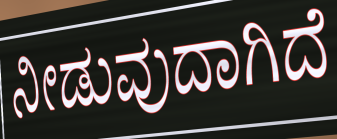
ನೀಡುವುದಾಗಿದೆ